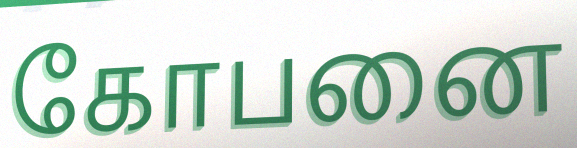
கோபனை